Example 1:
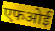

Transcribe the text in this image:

एफओई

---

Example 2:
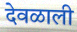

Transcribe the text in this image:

देवळाली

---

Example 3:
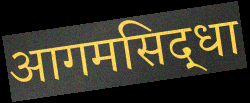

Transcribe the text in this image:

आगमसिद्धा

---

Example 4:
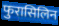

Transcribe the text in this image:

फुरासिलिन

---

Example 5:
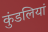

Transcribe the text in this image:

कुंडलियां